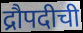
द्रौपदीची